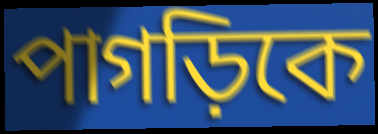
পাগড়িকে